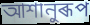
আশানুৰূপ